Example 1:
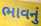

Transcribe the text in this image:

ભાવનું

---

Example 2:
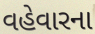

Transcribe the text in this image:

વહેવારના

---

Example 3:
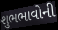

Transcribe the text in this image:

શુભભાવોની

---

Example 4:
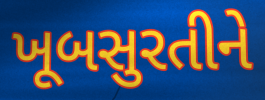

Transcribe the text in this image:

ખૂબસુરતીને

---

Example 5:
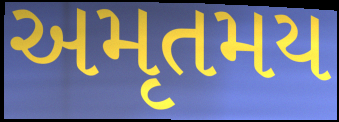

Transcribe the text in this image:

અમૃતમય